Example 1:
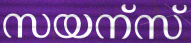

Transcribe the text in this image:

സയന്സ്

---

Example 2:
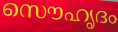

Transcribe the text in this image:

സൌഹൃദം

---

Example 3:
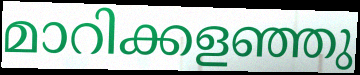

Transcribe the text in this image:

മാറിക്കളഞ്ഞു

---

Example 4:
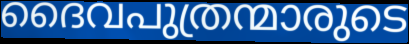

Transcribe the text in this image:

ദൈവപുത്രന്മാരുടെ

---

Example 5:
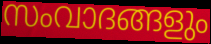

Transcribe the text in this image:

സംവാദങ്ങളും